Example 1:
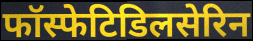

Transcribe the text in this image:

फॉस्फेटिडिलसेरिन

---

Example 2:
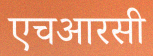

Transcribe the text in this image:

एचआरसी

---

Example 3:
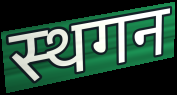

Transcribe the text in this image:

स्थगन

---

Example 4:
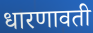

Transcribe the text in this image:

धारणावती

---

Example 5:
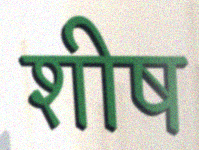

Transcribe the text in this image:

शीष